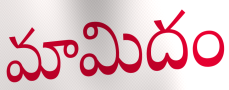
మామిదం